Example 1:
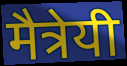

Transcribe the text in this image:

मैत्रेयी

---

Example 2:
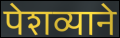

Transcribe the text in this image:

पेशव्याने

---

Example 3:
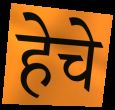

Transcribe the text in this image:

हेचे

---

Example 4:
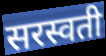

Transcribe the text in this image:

सरस्वती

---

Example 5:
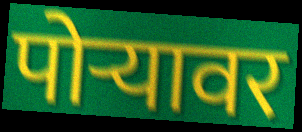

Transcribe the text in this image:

पोर्‍यावर